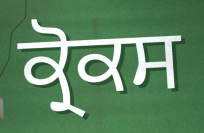
ਕ੍ਰੋਕਸ